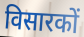
विसारकों